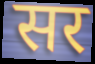
सर